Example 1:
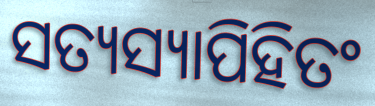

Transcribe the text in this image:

ସତ୍ୟସ୍ୟାପିହିତଂ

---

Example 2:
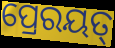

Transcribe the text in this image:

ପ୍ରେରୟତ୍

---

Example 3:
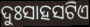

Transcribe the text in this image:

ଦୁଃସାହସଟିଏ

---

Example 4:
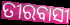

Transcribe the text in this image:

ତୀରବାସୀ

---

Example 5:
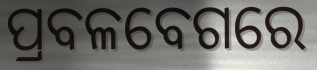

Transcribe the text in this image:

ପ୍ରବଳବେଗରେ